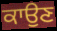
ਕਾਉਣ